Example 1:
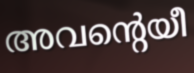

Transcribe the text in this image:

അവന്റെയീ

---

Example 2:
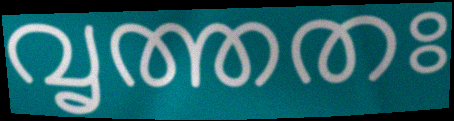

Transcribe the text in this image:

വൃത്തതഃ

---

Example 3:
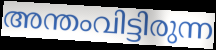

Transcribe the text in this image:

അന്തംവിട്ടിരുന്ന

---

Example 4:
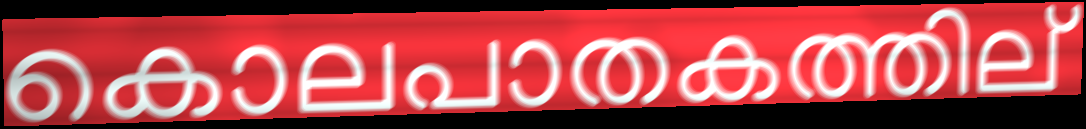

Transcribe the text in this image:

കൊലപാതകത്തില്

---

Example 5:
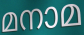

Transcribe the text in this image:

മനാമ